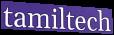
tamiltech